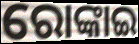
ରୋଙ୍କାଇ